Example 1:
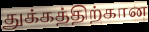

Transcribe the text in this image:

துக்கத்திற்கான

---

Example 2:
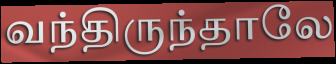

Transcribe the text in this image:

வந்திருந்தாலே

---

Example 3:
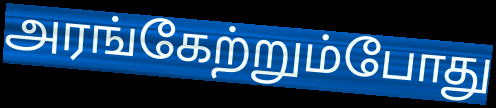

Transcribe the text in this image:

அரங்கேற்றும்போது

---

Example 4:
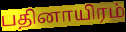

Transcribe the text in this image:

பதினாயிரம்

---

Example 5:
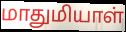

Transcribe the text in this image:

மாதுமியாள்